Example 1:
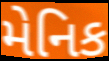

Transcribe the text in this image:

મેનિક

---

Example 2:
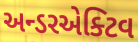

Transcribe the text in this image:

અન્ડરએક્ટિવ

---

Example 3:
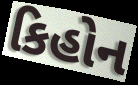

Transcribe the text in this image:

કિહોન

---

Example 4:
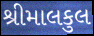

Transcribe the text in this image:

શ્રીમાલકુલ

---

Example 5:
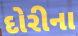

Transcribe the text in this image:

દોરીના